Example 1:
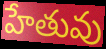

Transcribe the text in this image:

హేతువు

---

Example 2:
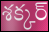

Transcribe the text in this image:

శక్కర్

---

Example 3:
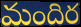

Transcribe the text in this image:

మందిర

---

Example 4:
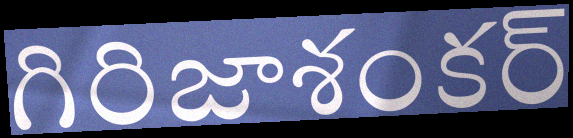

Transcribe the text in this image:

గిరిజాశంకర్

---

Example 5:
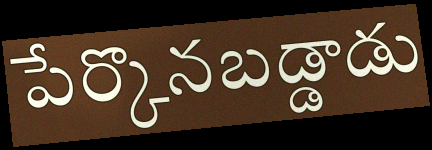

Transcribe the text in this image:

పేర్కొనబడ్డాడు